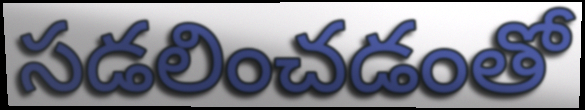
సడలించడంతో